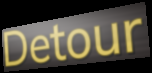
Detour